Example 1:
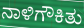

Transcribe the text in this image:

ನಾಳಿಗೌಕಿತು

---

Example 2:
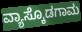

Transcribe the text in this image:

ವ್ಯಾಸ್ಕೊಡಗಾಮ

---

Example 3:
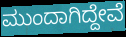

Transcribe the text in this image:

ಮುಂದಾಗಿದ್ದೇವೆ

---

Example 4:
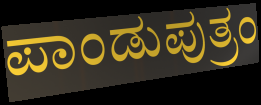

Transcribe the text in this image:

ಪಾಂಡುಪುತ್ರಂ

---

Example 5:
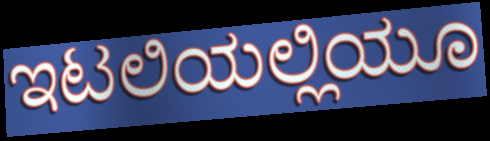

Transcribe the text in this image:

ಇಟಲಿಯಲ್ಲಿಯೂ